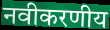
नवीकरणीय